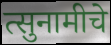
त्सुनामीचे